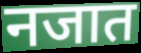
नजात